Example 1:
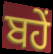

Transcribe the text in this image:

ਬਹੇਂ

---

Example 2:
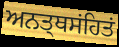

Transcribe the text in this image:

ਅਨਤ੍ਥਸਂਹਿਤਂ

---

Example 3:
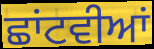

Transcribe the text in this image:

ਛਾਂਟਵੀਆਂ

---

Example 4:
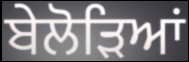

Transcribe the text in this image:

ਬੇਲੋੜਿਆਂ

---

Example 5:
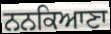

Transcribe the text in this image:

ਨਨਕਿਆਣਾ